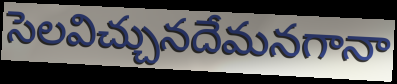
సెలవిచ్చునదేమనగానా